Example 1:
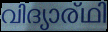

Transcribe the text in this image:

വിദ്യാര്ഥി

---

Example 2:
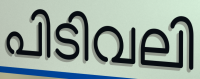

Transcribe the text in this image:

പിടിവലി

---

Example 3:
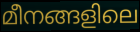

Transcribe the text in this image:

മീനങ്ങളിലെ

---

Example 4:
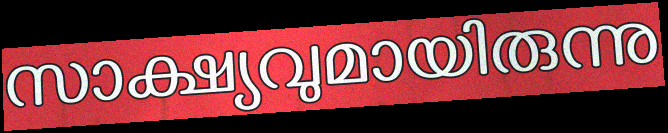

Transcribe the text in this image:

സാക്ഷ്യവുമായിരുന്നു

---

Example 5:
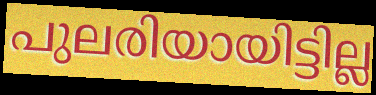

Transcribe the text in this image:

പുലരിയായിട്ടില്ല